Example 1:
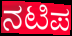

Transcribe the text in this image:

ನಟಿಪ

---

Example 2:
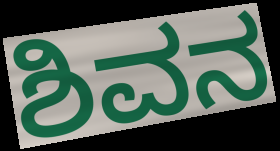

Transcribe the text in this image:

ಶಿವನ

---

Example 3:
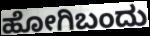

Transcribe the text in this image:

ಹೋಗಿಬಂದು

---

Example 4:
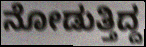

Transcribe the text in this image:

ನೋಡುತ್ತಿದ್ದ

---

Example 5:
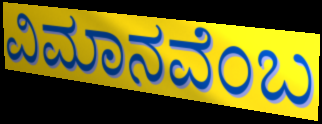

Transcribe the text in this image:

ವಿಮಾನವೆಂಬ